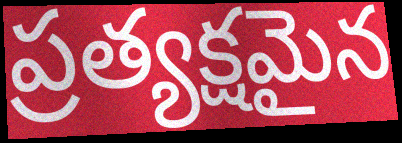
ప్రత్యక్షమైన